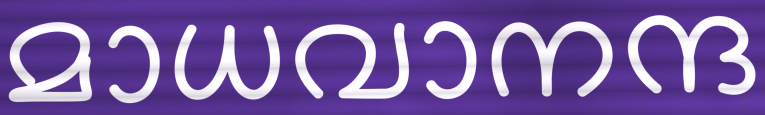
മാധവാനന്ദ